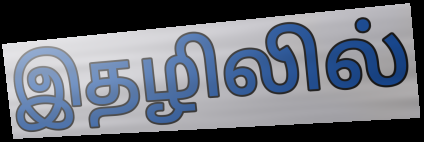
இதழிலில்